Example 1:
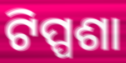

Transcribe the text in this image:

ଟିପ୍ପଶା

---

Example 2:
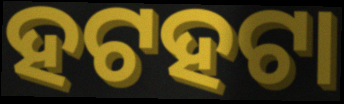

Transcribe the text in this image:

ହଟହଟା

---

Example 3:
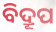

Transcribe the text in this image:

ବିଦ୍ରୂପ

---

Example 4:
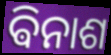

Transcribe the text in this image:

ଵିନାଶ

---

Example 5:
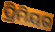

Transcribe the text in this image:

ପ୍ରିମିୟର